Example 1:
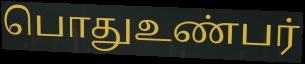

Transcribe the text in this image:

பொதுஉண்பர்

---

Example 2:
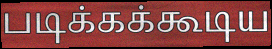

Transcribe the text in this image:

படிக்கக்கூடிய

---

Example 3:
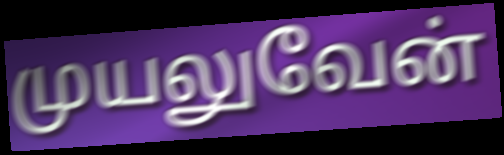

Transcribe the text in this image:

முயலுவேன்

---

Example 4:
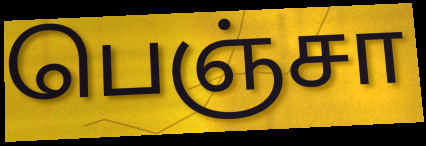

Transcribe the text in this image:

பெஞ்சா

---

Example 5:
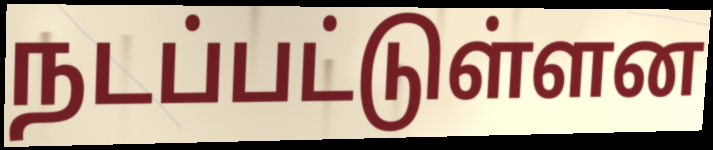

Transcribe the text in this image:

நடப்பட்டுள்ளன